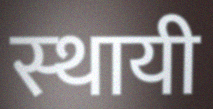
स्‍थायी